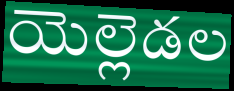
యెల్లెడల